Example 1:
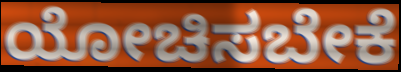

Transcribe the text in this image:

ಯೋಚಿಸಬೇಕೆ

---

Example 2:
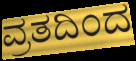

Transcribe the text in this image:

ವ್ರತದಿಂದ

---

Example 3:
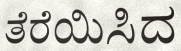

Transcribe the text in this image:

ತೆರೆಯಿಸಿದ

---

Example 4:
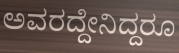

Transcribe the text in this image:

ಅವರದ್ದೇನಿದ್ದರೂ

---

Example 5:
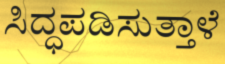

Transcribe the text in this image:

ಸಿದ್ಧಪಡಿಸುತ್ತಾಳೆ